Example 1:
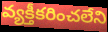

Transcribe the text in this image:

వ్యక్తీకరించలేని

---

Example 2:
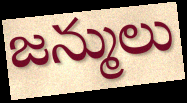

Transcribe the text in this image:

జన్ములు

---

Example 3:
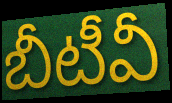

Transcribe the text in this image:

బీటీవీ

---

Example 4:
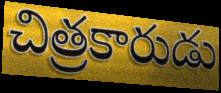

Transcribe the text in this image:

చిత్రకారుడు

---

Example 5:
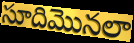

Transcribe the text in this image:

సూదిమొనలా